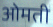
ओमती